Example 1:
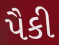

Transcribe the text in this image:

પૈકી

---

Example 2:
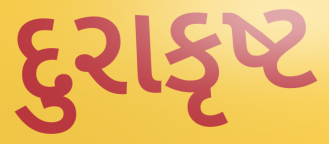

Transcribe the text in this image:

દુરાકૃષ્ટ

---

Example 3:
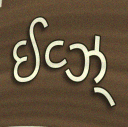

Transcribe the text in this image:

ઈવ્ઝ્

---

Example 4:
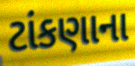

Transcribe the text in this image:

ટાંકણાના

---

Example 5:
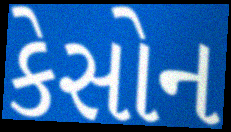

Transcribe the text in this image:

કેસોન